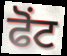
ਫੋਂਟ